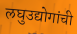
लघुउद्योगांची